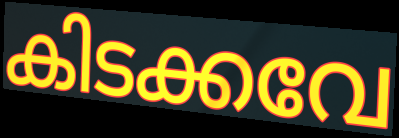
കിടക്കവേ